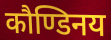
कौण्डिनय